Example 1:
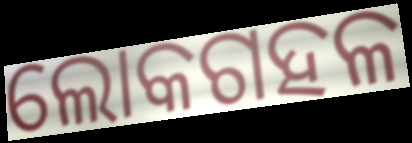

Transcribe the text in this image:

ଲୋକଗହଳ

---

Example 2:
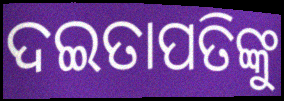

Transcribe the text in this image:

ଦଇତାପତିଙ୍କୁ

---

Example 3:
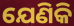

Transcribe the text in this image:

ଯେଣିକି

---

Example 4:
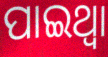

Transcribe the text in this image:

ପାଇଥ୍ବା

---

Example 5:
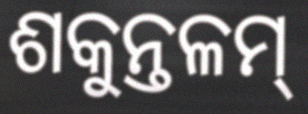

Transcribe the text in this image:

ଶକୁନ୍ତଳମ୍